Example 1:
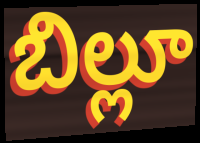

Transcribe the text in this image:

బిల్లూ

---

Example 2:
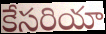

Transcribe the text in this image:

కేసరియా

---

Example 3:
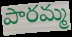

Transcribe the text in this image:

పారమ్మ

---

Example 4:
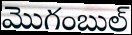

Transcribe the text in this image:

మొగంబుల్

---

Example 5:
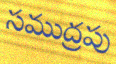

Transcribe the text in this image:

సముద్రపు